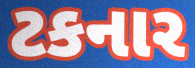
ટકનાર